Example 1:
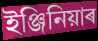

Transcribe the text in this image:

ইঞ্জিনিয়াৰ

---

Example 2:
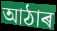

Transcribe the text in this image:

আঠাৰ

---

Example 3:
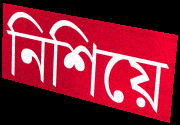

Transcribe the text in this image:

নিশিয়ে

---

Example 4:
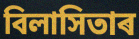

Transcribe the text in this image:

বিলাসিতাৰ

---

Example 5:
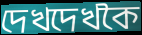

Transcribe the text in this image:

দেখদেখকৈ